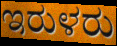
ಇರುಳರು